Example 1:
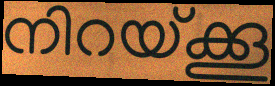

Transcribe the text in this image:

നിറയ്ക്കൂ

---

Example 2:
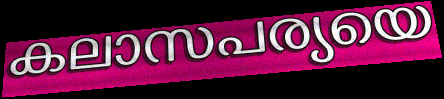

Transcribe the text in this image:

കലാസപര്യയെ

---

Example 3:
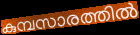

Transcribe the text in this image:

കുമ്പസാരത്തിൽ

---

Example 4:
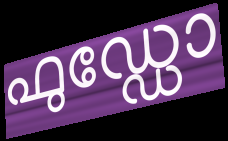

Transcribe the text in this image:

ഫുഡ്ഡോ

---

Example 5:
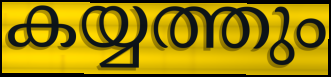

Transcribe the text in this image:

കയ്യത്തും